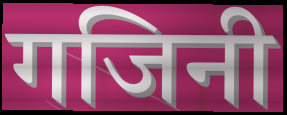
गजिनी